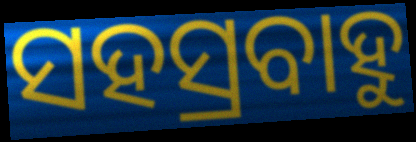
ସହସ୍ରବାହୁ